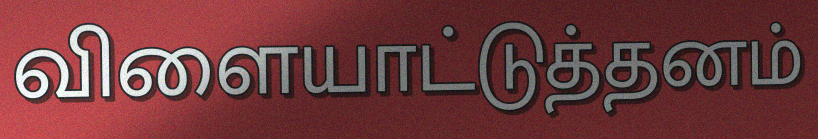
விளையாட்டுத்தனம்